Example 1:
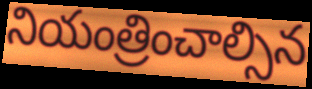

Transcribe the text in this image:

నియంత్రించాల్సిన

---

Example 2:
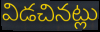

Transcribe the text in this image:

విడచినట్లు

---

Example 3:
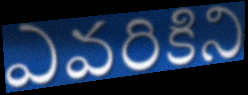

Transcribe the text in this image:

ఎవరికిని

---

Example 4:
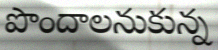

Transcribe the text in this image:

పొందాలనుకున్న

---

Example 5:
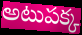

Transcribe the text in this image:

అటుపక్క